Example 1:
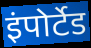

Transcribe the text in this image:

इंपोर्टेड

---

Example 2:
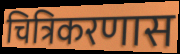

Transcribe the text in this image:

चित्रिकरणास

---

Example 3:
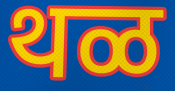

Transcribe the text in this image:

थळ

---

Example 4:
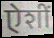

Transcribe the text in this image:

ऐशीं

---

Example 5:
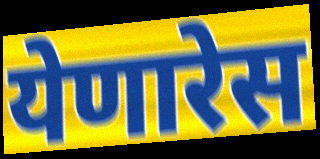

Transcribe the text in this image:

येणारेस